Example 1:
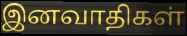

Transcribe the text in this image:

இனவாதிகள்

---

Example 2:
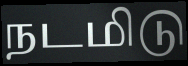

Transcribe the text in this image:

நடமிடு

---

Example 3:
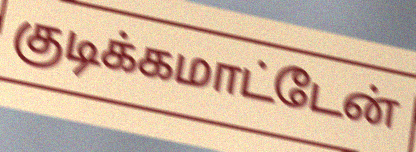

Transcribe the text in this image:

குடிக்கமாட்டேன்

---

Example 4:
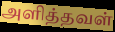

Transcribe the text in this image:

அளித்தவள்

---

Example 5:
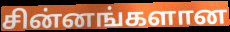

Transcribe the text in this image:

சின்னங்களான